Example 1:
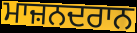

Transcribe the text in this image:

ਮਾਜ਼ਨਦਰਾਨ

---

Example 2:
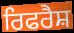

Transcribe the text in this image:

ਰਿਫਰੈਸ਼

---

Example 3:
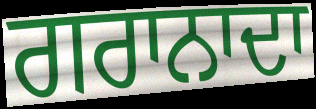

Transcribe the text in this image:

ਗਰਾਨਾਦਾ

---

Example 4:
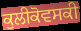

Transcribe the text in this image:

ਕੁਲੀਕੋਵਸਕੀ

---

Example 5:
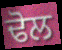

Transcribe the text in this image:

ਢੋਲ